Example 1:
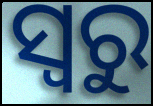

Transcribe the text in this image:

ସ୍ୱରୁ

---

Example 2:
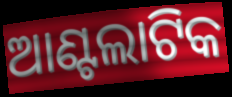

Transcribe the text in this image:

ଆଣ୍ଟଲାଟିକ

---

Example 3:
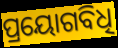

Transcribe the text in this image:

ପ୍ରୟୋଗବିଧି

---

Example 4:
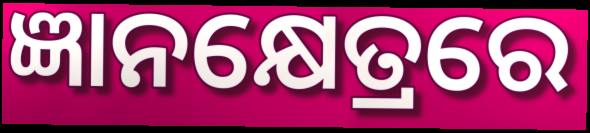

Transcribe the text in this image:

ଜ୍ଞାନକ୍ଷେତ୍ରରେ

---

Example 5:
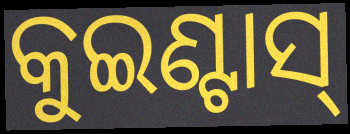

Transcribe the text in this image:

କୁଇଣ୍ଟାସ୍